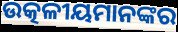
ଉତ୍କଳୀୟମାନଙ୍କର